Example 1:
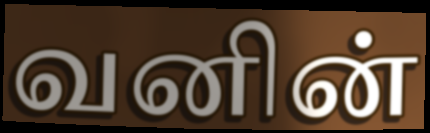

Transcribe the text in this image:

வனின்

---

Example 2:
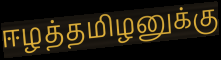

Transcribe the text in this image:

ஈழத்தமிழனுக்கு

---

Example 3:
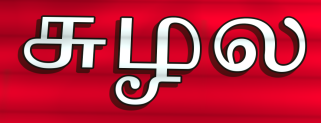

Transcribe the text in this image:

சுழல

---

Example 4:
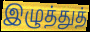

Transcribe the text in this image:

இழுத்துத்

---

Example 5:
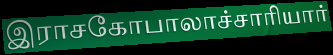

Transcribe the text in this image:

இராசகோபாலாச்சாரியார்